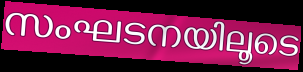
സംഘടനയിലൂടെ